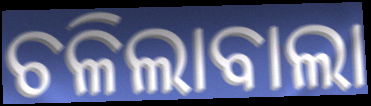
ଚଳିଲାବାଲା